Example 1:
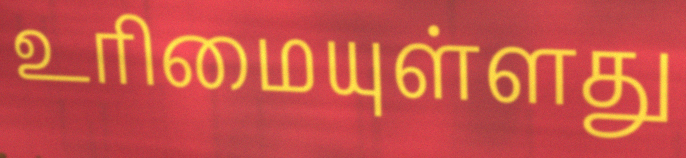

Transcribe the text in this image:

உரிமையுள்ளது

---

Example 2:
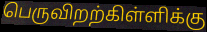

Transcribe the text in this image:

பெருவிறற்கிள்ளிக்கு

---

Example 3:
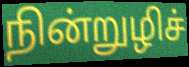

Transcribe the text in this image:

நின்றுழிச்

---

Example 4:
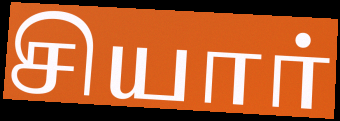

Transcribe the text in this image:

சியார்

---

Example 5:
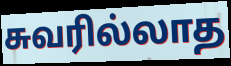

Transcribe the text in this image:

சுவரில்லாத